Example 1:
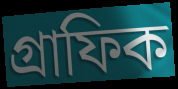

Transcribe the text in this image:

গ্ৰাফিক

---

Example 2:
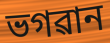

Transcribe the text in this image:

ভগৱান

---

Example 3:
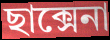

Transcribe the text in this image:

ছাক্সেনা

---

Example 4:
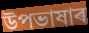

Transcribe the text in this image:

উপভাষাৰ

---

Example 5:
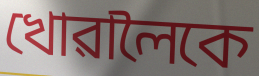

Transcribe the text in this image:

খোৱালৈকে